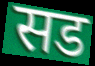
सड